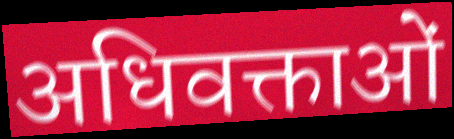
अधिवक्ताओं